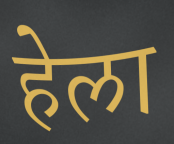
हेला